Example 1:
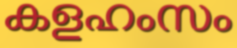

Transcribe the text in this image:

കളഹംസം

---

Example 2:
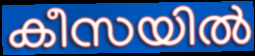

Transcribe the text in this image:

കീസയിൽ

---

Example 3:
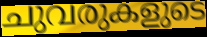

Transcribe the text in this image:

ചുവരുകളുടെ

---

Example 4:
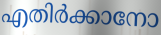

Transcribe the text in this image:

എതിർക്കാനോ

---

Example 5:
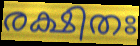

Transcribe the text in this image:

രക്ഷിതഃ